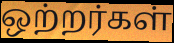
ஒற்றர்கள்